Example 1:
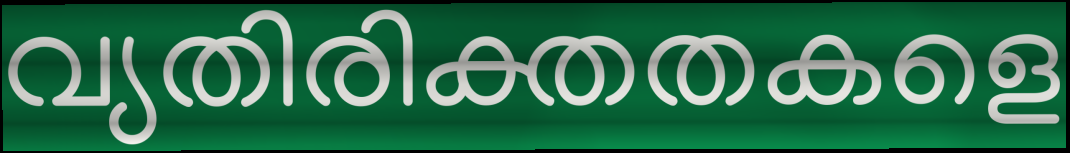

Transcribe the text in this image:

വ്യതിരിക്തതകളെ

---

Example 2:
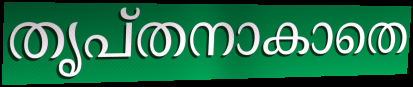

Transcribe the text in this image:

തൃപ്തനാകാതെ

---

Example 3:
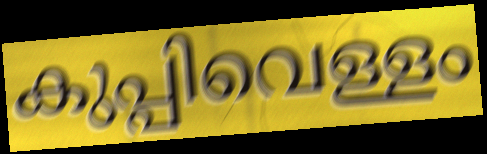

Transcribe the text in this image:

കുപ്പിവെള്ളം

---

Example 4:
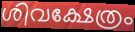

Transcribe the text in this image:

ശിവക്ഷേത്രം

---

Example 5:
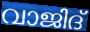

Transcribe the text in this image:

വാജിദ്